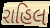
રાહિલ